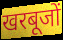
खरबूजों